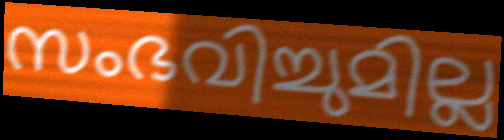
സംഭവിച്ചുമില്ല